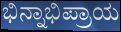
ಭಿನ್ನಾಭಿಪ್ರಾಯ